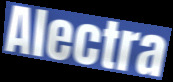
Alectra